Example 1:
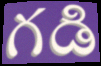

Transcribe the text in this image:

గడి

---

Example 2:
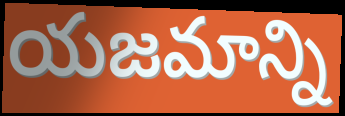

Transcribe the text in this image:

యజమాన్ని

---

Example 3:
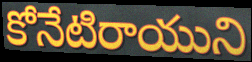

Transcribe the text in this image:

కోనేటిరాయుని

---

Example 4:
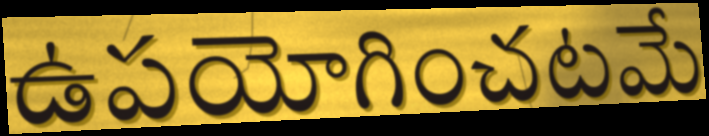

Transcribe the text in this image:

ఉపయోగించటమే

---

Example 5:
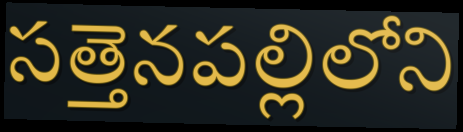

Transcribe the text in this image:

సత్తెనపల్లిలోని